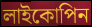
লাইকোপিন